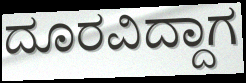
ದೂರವಿದ್ದಾಗ